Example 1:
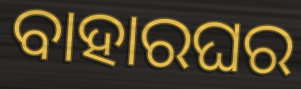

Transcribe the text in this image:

ବାହାରଘର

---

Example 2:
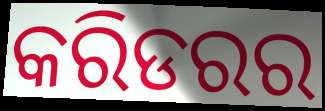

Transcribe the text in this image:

କରିଡରର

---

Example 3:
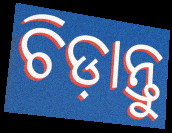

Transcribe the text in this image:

ଚିଡ଼ାନ୍ତୁ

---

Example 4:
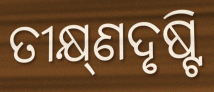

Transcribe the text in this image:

ତୀକ୍ଷ୍‌ଣଦୃଷ୍ଟି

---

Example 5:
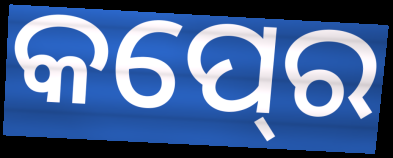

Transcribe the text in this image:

କପ୍‍ରେ